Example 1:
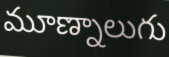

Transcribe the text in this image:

మూణ్నాలుగు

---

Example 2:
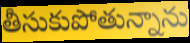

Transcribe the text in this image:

తీసుకుపోతున్నాను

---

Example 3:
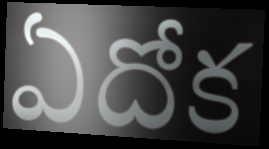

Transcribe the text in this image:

ఏదోక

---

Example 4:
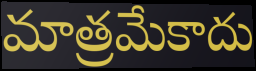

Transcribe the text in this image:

మాత్రమేకాదు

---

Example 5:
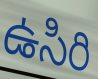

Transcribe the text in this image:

ఉసిరి